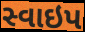
સ્વાઇપ